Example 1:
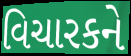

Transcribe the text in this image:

વિચારકને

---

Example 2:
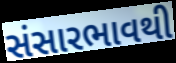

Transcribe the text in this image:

સંસારભાવથી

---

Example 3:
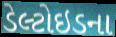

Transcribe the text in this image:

ડેલ્ટોઇડના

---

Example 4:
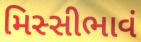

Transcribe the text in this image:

મિસ્સીભાવં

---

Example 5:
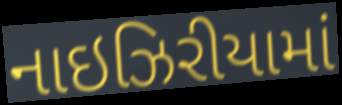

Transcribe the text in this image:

નાઇઝિરીયામાં